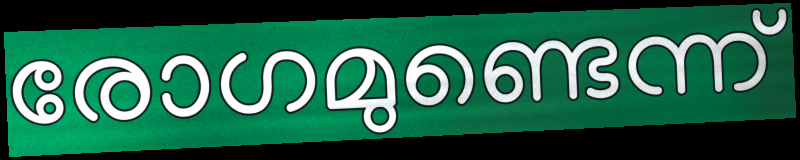
രോഗമുണ്ടെന്ന്